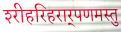
श्रीहरिहरार्पणमस्तु